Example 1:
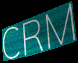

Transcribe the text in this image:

CRM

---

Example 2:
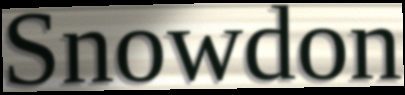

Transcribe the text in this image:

Snowdon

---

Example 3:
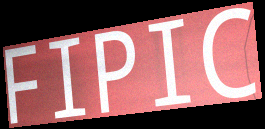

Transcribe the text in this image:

FIPIC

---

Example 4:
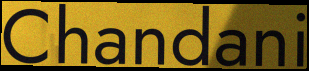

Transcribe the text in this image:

Chandani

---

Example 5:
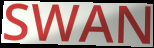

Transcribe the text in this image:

SWAN